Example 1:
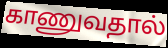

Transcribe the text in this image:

காணுவதால்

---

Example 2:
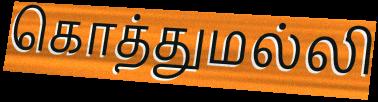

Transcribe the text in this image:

கொத்துமல்லி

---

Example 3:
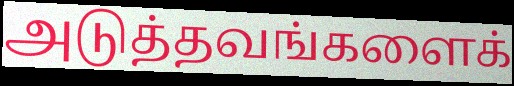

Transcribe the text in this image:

அடுத்தவங்களைக்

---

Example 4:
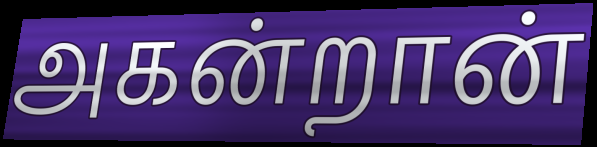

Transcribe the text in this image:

அகன்றான்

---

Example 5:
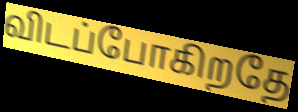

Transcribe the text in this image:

விடப்போகிறதே